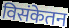
विसंकेतन